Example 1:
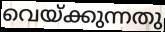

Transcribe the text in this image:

വെയ്ക്കുന്നതു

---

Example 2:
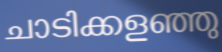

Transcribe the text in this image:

ചാടിക്കളഞ്ഞു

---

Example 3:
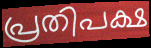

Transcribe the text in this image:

പ്രതിപക്ഷ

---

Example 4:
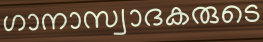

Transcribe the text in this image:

ഗാനാസ്വാദകരുടെ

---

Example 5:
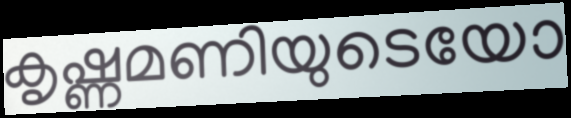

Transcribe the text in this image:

കൃഷ്ണമണിയുടെയോ